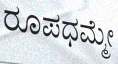
ರೂಪಧಮ್ಮೇ